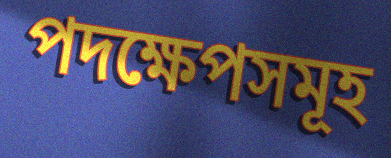
পদক্ষেপসমূহ